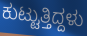
ಕುಟ್ಟುತ್ತಿದ್ದಳು